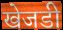
खेजडी